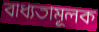
বাধ্যতামূলক